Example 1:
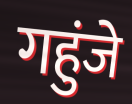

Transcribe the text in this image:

गहुंजे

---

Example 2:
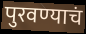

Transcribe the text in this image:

पुरवण्याचं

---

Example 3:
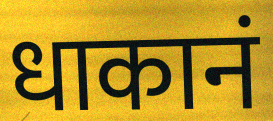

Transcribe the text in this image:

धाकानं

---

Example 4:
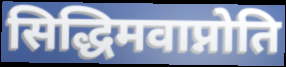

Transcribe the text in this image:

सिद्धिमवाप्नोति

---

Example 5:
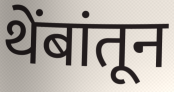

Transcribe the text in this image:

थेंबांतून